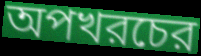
অপখরচের